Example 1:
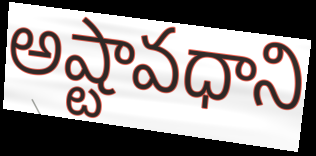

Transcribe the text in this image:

అష్టావధాని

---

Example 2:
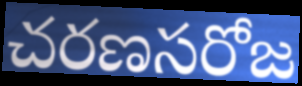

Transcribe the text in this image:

చరణసరోజ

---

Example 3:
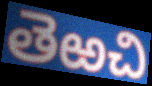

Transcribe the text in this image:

తెఱచి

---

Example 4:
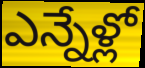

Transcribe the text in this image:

ఎన్నేళ్లో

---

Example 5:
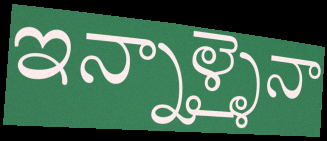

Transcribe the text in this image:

ఇన్నాళ్ళైనా